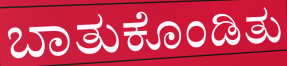
ಬಾತುಕೊಂಡಿತು